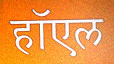
हॉएल